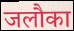
जलौका